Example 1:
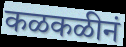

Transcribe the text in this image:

कळकळीनं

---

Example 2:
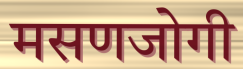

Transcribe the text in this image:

मसणजोगी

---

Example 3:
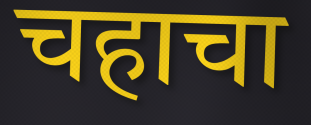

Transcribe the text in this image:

चहाचा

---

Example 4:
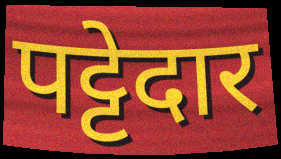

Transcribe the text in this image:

पट्टेदार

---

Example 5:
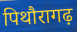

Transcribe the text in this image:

पिथौरागढ़